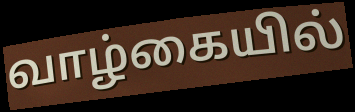
வாழ்கையில்